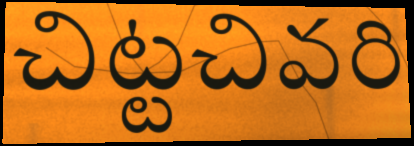
చిట్టచివరి